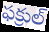
ఫక్రుల్